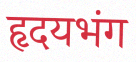
हृदयभंग